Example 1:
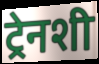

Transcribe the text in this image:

ट्रेनशी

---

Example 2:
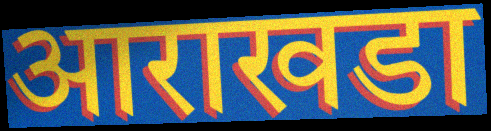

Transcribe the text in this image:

आराखडा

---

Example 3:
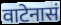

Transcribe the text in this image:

वाटेनासं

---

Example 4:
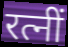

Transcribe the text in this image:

रत्नीं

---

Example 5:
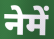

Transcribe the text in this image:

नेमें